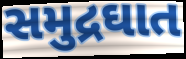
સમુદ્રઘાત